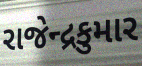
રાજેન્દ્રકુમાર